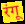
रंगू